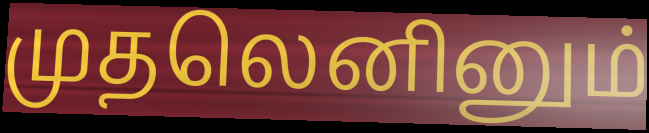
முதலெனினும்